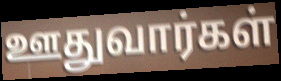
ஊதுவார்கள்